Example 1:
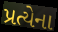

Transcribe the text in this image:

પ્રત્યેના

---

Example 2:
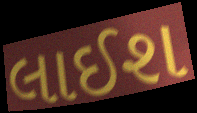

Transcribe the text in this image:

લાઈશ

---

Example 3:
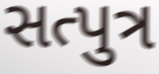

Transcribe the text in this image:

સત્પુત્ર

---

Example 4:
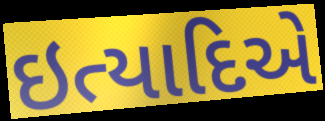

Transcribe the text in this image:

ઇત્યાદિએ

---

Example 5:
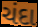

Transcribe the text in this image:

ચંદા